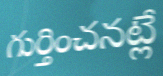
గుర్తించనట్లే